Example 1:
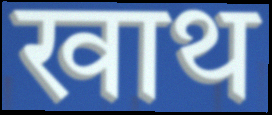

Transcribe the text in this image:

खाथ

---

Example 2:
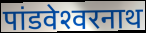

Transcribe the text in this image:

पांडवेश्वरनाथ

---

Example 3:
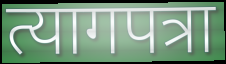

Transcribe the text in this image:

त्यागपत्रा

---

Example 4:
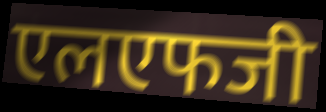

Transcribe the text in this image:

एलएफजी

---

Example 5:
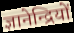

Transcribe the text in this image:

ज्ञानेन्द्रियों